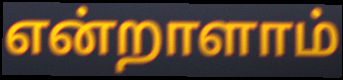
என்றாளாம்